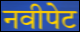
नवीपेट